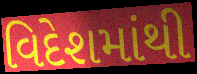
વિદેશમાંથી